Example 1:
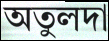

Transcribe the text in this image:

অতুলদা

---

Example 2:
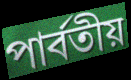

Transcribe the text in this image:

পার্বতীয়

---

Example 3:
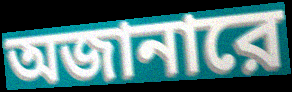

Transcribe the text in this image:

অজানারে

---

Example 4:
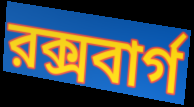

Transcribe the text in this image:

রক্সবার্গ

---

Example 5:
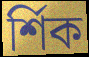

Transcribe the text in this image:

র্শিক